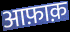
आफ़ाक़